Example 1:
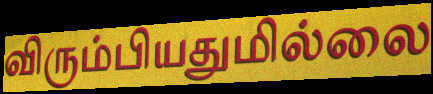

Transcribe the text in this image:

விரும்பியதுமில்லை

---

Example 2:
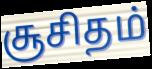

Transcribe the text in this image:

சூசிதம்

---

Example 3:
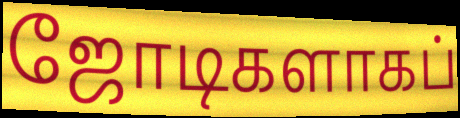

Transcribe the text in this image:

ஜோடிகளாகப்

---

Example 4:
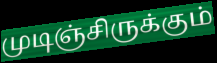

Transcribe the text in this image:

முடிஞ்சிருக்கும்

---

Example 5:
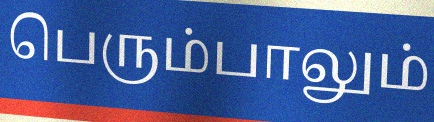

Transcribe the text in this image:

பெரும்பாலும்